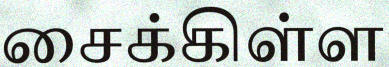
சைக்கிள்ள